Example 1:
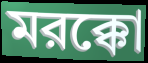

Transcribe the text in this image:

মরক্কো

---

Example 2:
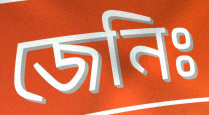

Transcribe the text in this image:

জেনিঃ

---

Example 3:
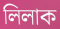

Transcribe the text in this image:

লিলাক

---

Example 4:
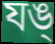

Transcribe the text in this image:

যঙ্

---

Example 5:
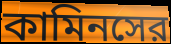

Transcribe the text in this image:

কামিনসের